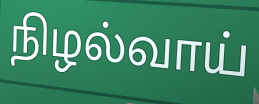
நிழல்வாய்